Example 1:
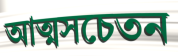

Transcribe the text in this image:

আত্মসচেতন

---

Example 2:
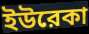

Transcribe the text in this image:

ইউরেকা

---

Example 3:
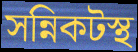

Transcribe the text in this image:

সন্নিকটস্থ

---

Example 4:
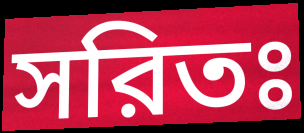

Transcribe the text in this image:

সরিতঃ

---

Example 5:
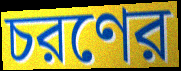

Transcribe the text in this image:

চরণের